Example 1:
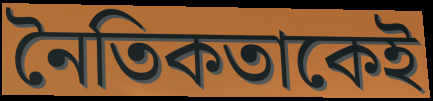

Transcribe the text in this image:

নৈতিকতাকেই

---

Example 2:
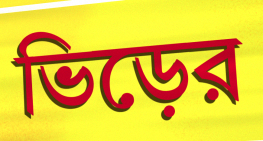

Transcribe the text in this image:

ভিড়ের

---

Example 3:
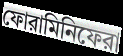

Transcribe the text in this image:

ফোরামিনিফেরা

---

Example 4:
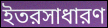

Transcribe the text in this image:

ইতরসাধারণ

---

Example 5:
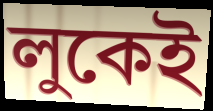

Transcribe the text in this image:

লুকেই